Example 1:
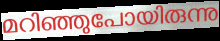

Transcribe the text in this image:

മറിഞ്ഞുപോയിരുന്നു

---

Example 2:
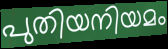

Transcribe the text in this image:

പുതിയനിയമം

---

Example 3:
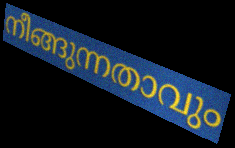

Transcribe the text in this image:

നീങ്ങുന്നതാവും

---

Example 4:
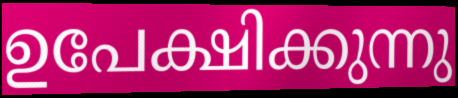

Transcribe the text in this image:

ഉപേക്ഷിക്കുന്നു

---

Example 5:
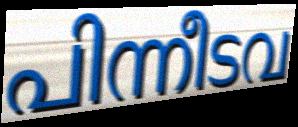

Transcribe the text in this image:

പിന്നീടവ